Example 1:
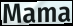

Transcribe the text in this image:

Mama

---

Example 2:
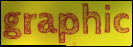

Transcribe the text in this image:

graphic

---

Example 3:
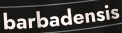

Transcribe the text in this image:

barbadensis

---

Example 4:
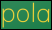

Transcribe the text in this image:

pola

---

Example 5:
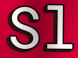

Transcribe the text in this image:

Sl